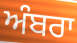
ਅੰਬਰਾ